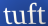
tuft